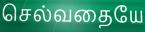
செல்வதையே